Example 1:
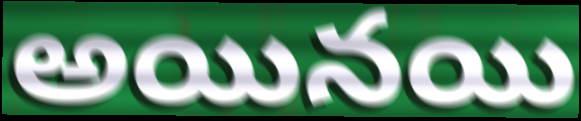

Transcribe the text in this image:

అయినయి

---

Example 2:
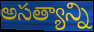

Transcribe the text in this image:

అసత్యాన్ని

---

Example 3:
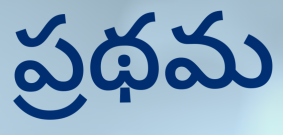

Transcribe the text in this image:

ప్రథమ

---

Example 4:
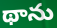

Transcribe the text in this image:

థాను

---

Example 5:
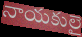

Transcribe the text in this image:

నాయకులై